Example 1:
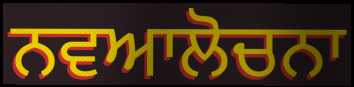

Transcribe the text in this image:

ਨਵਆਲੋਚਨਾ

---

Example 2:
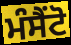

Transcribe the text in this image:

ਮੰਸੈਂਟੋ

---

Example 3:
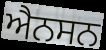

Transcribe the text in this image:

ਐਨਸਨ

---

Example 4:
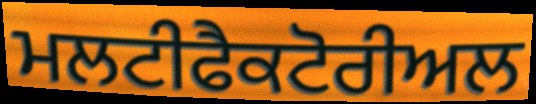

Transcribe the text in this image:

ਮਲਟੀਫੈਕਟੋਰੀਅਲ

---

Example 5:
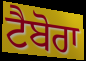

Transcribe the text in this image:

ਟੈਬੋਰਾ